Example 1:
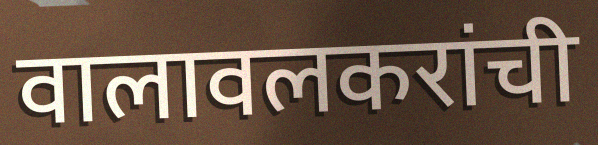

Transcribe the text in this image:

वालावलकरांची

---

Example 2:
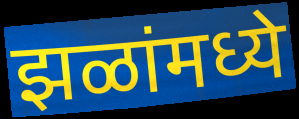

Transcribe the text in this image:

झळांमध्ये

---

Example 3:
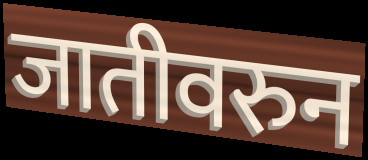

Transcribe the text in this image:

जातीवरुन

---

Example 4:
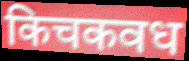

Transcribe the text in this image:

किचकवध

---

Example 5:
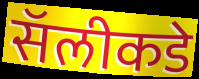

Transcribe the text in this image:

सॅलीकडे